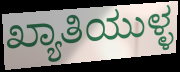
ಖ್ಯಾತಿಯುಳ್ಳ